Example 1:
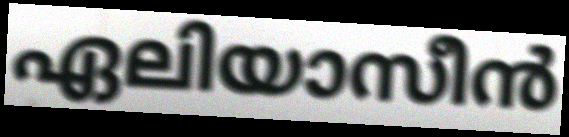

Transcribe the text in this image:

ഏലിയാസീൻ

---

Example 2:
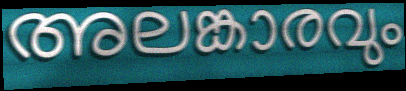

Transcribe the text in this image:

അലങ്കാരവും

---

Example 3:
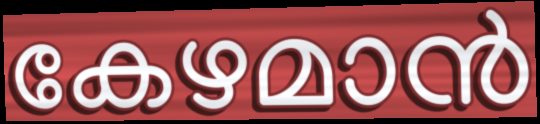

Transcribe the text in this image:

കേഴമാൻ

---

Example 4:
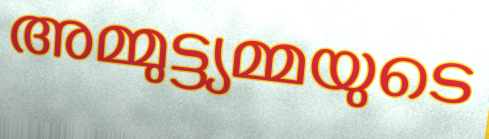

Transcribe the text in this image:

അമ്മുട്ട്യമ്മയുടെ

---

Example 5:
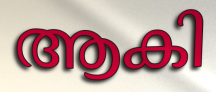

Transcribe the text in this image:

ആകി